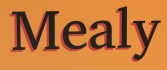
Mealy